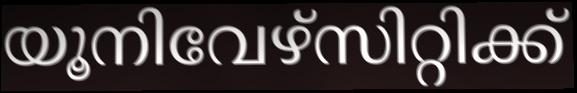
യൂനിവേഴ്സിറ്റിക്ക്